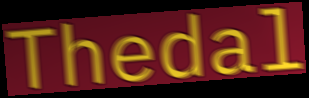
Thedal